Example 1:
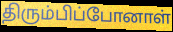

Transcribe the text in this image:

திரும்பிப்போனாள்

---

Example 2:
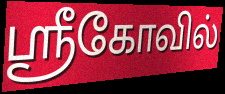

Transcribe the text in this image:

ஸ்ரீகோவில்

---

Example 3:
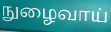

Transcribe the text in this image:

நுழைவாய்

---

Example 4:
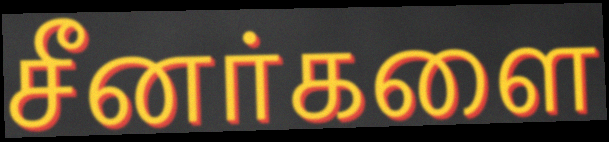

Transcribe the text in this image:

சீனர்களை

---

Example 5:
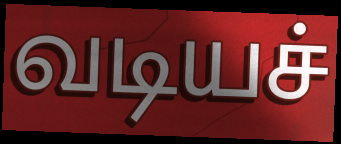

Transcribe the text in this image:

வடியச்